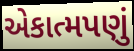
એકાત્મપણું